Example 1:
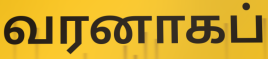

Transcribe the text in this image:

வரனாகப்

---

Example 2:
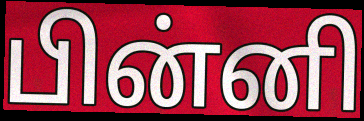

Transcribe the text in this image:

பின்னி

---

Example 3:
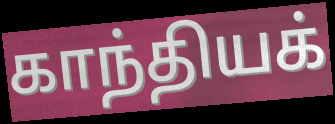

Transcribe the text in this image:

காந்தியக்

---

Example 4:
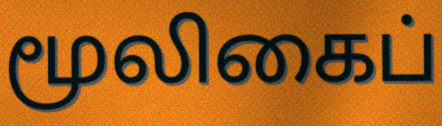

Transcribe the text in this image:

மூலிகைப்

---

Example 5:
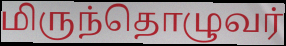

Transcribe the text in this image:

மிருந்தொழுவர்